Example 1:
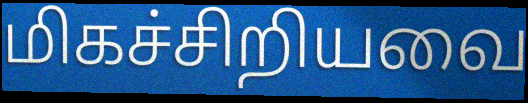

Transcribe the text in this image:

மிகச்சிறியவை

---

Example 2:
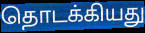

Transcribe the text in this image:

தொடக்கியது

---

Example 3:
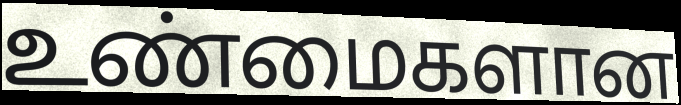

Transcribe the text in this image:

உண்மைகளான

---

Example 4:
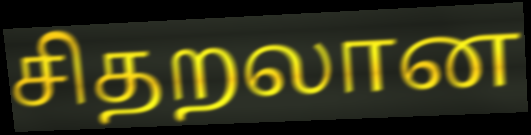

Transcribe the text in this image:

சிதறலான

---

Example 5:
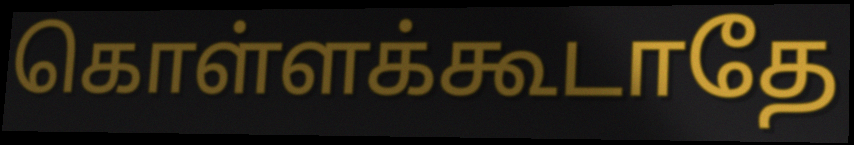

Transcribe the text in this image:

கொள்ளக்கூடாதே